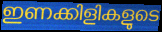
ഇണക്കിളികളുടെ